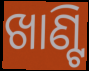
ଖାଣ୍ଟି